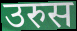
उरुस